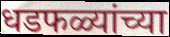
धडफळ्यांच्या